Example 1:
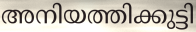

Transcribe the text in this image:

അനിയത്തിക്കുട്ടി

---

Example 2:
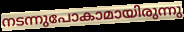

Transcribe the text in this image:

നടന്നുപോകാമായിരുന്നു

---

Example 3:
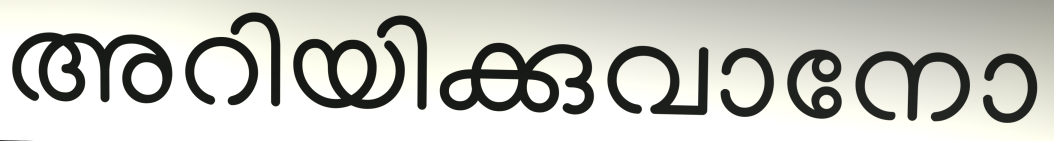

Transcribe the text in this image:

അറിയിക്കുവാനോ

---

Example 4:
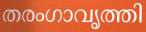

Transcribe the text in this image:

തരംഗാവൃത്തി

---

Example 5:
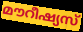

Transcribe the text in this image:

മൗറീഷ്യസ്